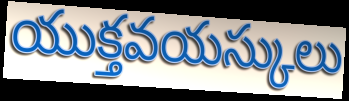
యుక్తవయస్కులు